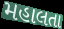
મહાલતા